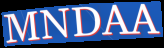
MNDAA